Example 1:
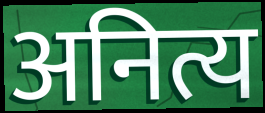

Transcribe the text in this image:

अनित्य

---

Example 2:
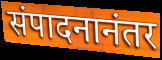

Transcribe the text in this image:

संपादनानंतर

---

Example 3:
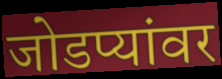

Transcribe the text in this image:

जोडप्यांवर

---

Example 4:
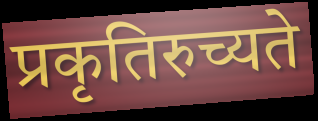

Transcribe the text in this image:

प्रकृतिरुच्यते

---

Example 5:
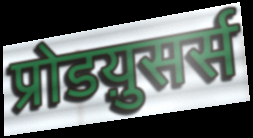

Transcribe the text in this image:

प्रोडय़ुसर्स